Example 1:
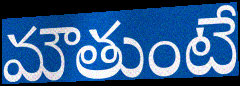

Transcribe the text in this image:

మౌతుంటే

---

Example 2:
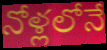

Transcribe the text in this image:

నోళ్లలోనే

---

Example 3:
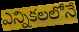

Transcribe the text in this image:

ఎన్నికలలోనే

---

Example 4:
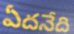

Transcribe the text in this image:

ఏదనేది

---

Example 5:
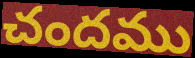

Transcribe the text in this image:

చందము